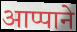
आप्पाने